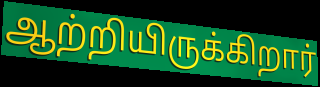
ஆற்றியிருக்கிறார்